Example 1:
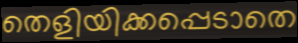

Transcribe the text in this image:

തെളിയിക്കപ്പെടാതെ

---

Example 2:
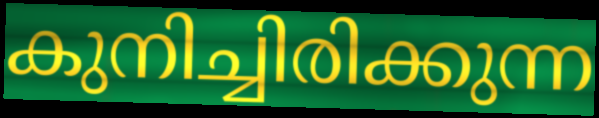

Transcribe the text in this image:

കുനിച്ചിരിക്കുന്ന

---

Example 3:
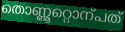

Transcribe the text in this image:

തൊണ്ണൂറ്റൊന്പത്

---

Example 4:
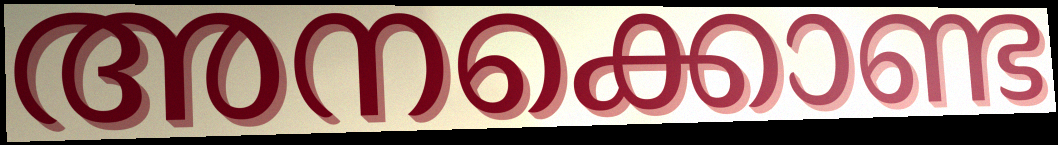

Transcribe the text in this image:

അനക്കൊണ്ട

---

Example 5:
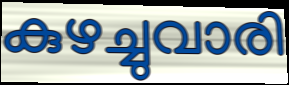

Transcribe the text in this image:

കുഴച്ചുവാരി